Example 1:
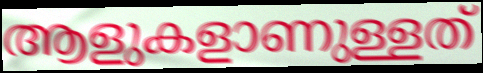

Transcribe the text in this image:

ആളുകളാണുള്ളത്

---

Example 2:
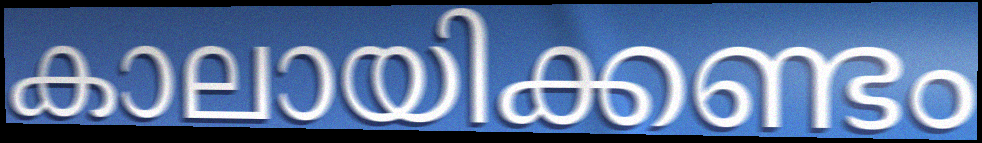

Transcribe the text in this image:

കാലായിക്കണ്ടം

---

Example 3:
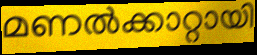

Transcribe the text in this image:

മണൽക്കാറ്റായി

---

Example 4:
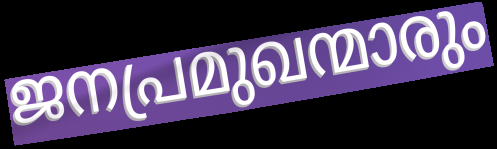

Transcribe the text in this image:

ജനപ്രമുഖന്മാരും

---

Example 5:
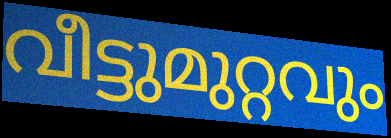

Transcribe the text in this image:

വീട്ടുമുറ്റവും